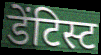
डेंटिस्ट